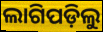
ଲାଗିପଡ଼ିଲୁ